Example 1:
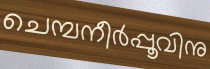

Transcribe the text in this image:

ചെമ്പനീർപ്പൂവിനു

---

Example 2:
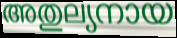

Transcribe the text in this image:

അതുല്യനായ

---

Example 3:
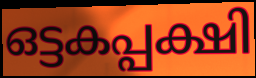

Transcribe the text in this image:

ഒട്ടകപ്പക്ഷി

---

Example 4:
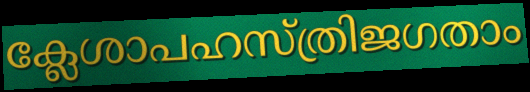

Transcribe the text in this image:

ക്ലേശാപഹസ്ത്രിജഗതാം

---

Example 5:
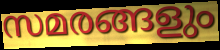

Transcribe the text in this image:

സമരങ്ങളും